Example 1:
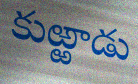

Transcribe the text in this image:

కుఱ్ఱాడు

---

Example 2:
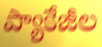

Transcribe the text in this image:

ప్యాకేజీల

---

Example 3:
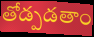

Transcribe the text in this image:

తోడ్పడతాం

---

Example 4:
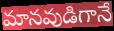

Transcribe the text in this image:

మానవుడిగానే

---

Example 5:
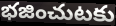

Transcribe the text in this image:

భజించుటకు